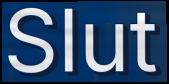
Slut